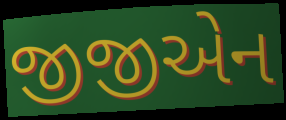
જીજીએન